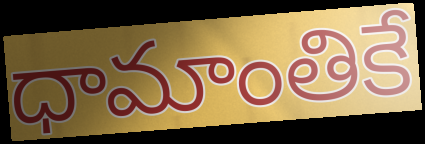
ధామాంతికే